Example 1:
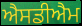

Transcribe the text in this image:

ਐਸਡੀਐਮ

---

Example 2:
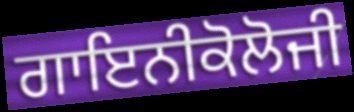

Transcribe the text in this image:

ਗਾਇਨੀਕੋਲੋਜੀ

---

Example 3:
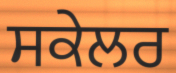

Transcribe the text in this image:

ਸਕੇਲਰ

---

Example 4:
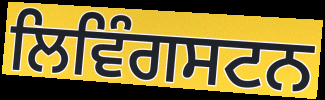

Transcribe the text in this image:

ਲਿਵਿੰਗਸਟਨ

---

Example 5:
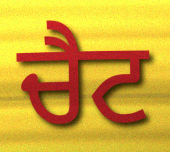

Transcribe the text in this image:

ਚੈਟ